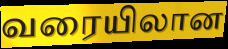
வரையிலான